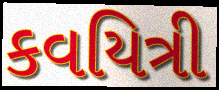
કવયિત્રી